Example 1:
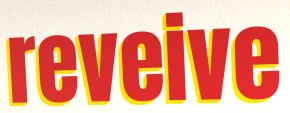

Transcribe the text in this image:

reveive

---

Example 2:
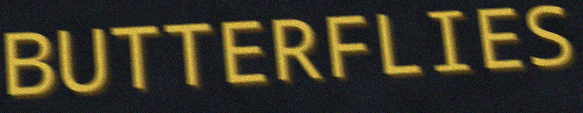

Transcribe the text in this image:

BUTTERFLIES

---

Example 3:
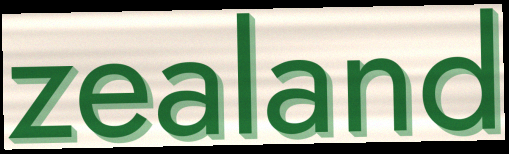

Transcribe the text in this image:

zealand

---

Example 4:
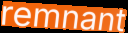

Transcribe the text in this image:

remnant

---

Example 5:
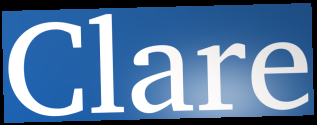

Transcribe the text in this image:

Clare